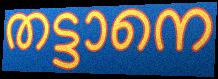
തട്ടാനെ